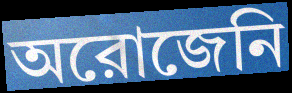
অরোজেনি